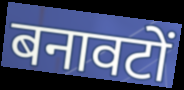
बनावटों